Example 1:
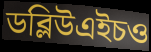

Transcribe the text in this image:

ডব্লিউএইচও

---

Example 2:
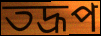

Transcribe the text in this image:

তদ্রূপ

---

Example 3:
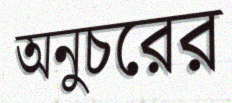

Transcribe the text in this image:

অনুচরের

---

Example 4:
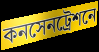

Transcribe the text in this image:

কনসেনট্রেশনে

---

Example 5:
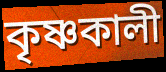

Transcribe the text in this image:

কৃষ্ণকালী